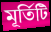
মূৰ্তিটি